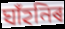
ঘাঁহনিৰ